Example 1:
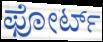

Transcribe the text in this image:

ಫೋರ್ಟ್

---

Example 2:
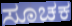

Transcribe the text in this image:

ಸೂಚಕ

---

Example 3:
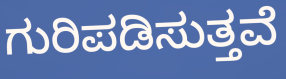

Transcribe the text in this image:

ಗುರಿಪಡಿಸುತ್ತವೆ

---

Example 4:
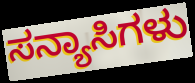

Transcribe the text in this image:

ಸನ್ಯಾಸಿಗಳು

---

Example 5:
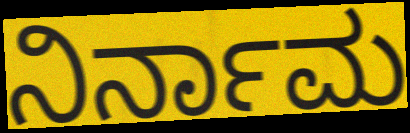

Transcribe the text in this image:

ನಿರ್ನಾಮ